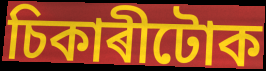
চিকাৰীটোক